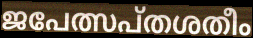
ജപേത്സപ്തശതീം